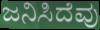
ಜನಿಸಿದೆವು